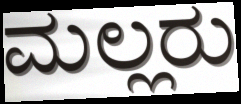
ಮಲ್ಲರು